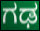
ಗಢ